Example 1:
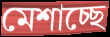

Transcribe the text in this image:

মেশাচ্ছে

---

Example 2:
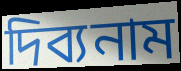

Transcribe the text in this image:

দিব্যনাম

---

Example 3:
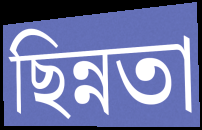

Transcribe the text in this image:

ছিন্নতা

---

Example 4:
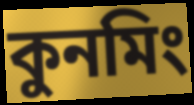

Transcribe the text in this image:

কুনমিং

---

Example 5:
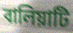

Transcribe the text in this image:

বালিয়াটি